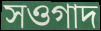
সওগাদ